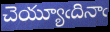
చెయ్యూఁదినాఁ